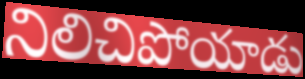
నిలిచిపోయాడు